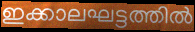
ഇക്കാലഘട്ടത്തിൽ